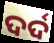
ଦର୍ଦ